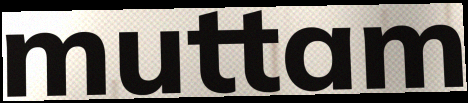
muttam